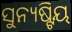
ସୁନ୍ୟଷ୍ଟିୟ